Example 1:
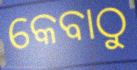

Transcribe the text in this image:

କେବାଠୁ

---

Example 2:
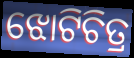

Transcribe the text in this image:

ଝୋଟିଚିତ୍ର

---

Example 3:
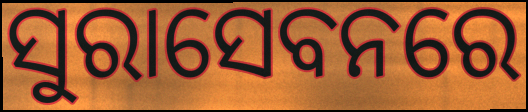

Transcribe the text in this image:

ସୁରାସେବନରେ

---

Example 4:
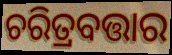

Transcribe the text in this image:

ଚରିତ୍ରବତ୍ତାର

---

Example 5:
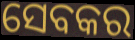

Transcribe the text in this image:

ସେବକର